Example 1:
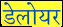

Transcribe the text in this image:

डेलोयर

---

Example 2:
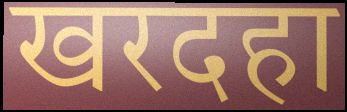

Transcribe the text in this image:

खरदहा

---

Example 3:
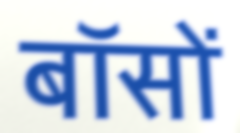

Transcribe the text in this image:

बॉसों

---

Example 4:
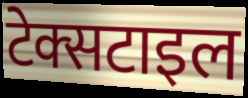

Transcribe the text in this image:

टेक्‍सटाइल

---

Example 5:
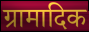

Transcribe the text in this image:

ग्रामादिक